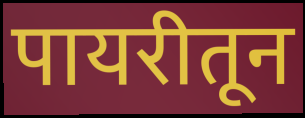
पायरीतून